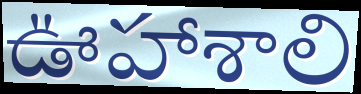
ఊహాశాలి